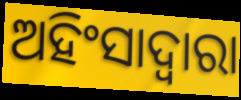
ଅହିଂସାଦ୍ୱାରା